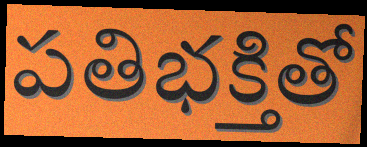
పతిభక్తితో